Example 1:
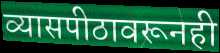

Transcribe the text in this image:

व्यासपीठावरूनही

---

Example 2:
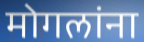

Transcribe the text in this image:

मोगलांना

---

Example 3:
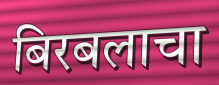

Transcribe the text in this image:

बिरबलाचा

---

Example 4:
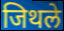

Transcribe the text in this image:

जिथले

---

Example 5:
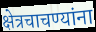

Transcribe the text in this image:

क्षेत्रचाचण्यांना